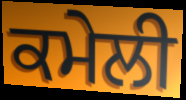
ਕਮੇਲੀ